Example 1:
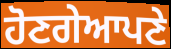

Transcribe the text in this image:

ਹੋਣਗੇਆਪਣੇ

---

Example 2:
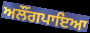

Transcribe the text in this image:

ਅਲੌਂਗਪਾਇਆ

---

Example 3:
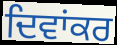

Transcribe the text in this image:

ਦਿਵਾਂਕਰ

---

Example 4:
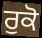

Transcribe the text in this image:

ਰੁਕੋ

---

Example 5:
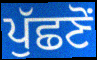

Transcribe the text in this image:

ਪੁੱਛਣੋਂ